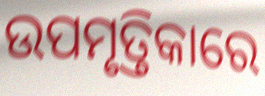
ଉପମୃତ୍ତିକାରେ